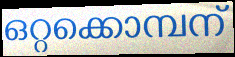
ഒറ്റക്കൊമ്പന്